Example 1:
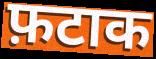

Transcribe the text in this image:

फ़टाक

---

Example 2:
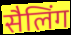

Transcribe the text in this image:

सैलिंग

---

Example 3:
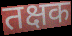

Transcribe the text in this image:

तक्षक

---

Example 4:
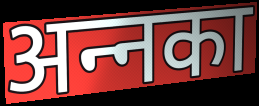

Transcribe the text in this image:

अन्नका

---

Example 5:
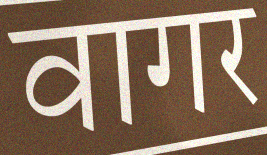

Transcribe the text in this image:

वागर